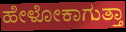
ಹೇಳೋಕಾಗುತ್ತಾ